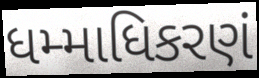
ધમ્માધિકરણં